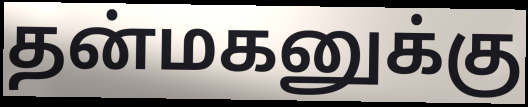
தன்மகனுக்கு